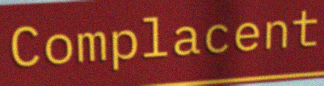
Complacent